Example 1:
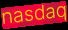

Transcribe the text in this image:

nasdaq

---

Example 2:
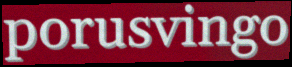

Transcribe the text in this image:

porusvingo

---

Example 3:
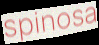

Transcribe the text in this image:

spinosa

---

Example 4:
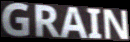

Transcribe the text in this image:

GRAIN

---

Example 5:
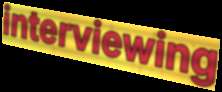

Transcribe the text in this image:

interviewing